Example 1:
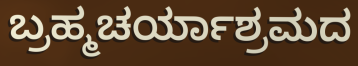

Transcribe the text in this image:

ಬ್ರಹ್ಮಚರ್ಯಾಶ್ರಮದ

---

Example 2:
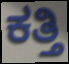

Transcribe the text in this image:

ಕತ್ತಿ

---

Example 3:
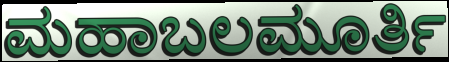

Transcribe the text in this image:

ಮಹಾಬಲಮೂರ್ತಿ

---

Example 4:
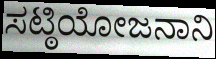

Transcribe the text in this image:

ಸಟ್ಠಿಯೋಜನಾನಿ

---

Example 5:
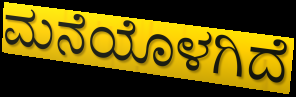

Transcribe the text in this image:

ಮನೆಯೊಳಗಿದೆ